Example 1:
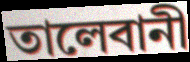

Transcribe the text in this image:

তালেবানী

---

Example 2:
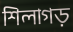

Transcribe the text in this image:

শিলাগড়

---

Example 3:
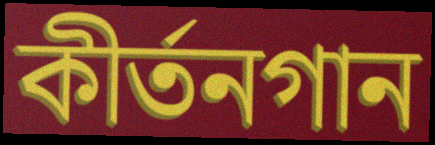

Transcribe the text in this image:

কীর্তনগান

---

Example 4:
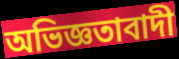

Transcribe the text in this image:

অভিজ্ঞতাবাদী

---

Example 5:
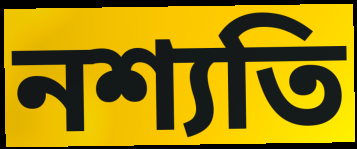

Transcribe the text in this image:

নশ্যতি